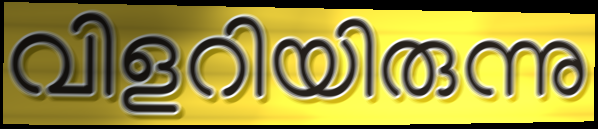
വിളറിയിരുന്നു